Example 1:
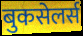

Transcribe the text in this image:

बुकसेलर्स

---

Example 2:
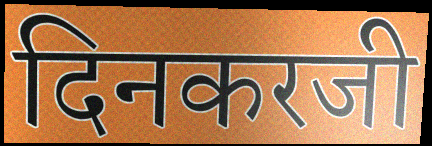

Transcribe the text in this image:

दिनकरजी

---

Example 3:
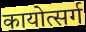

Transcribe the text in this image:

कायोत्सर्ग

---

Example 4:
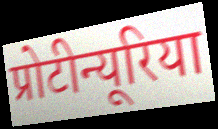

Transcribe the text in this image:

प्रोटीन्यूरिया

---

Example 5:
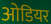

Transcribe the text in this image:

ओडियर